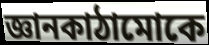
জ্ঞানকাঠামোকে